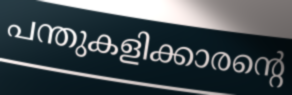
പന്തുകളിക്കാരന്റെ